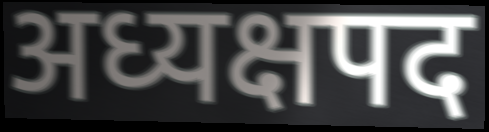
अध्यक्षपद